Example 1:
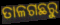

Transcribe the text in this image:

ତାଳଗଛରୁ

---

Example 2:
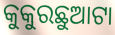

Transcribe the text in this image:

କୁକୁରଛୁଆଟା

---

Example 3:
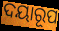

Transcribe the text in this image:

ଦୟାରୂପ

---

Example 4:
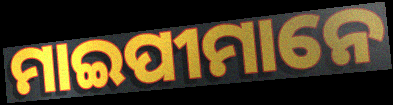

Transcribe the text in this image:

ମାଇପୀମାନେ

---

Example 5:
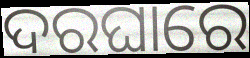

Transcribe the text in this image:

ଦରଘାରେ